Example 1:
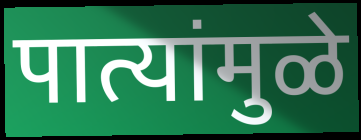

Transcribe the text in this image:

पात्यांमुळे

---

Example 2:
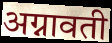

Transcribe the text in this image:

अग्नावती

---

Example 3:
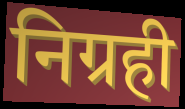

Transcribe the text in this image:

निग्रही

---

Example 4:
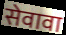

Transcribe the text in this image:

सेवावा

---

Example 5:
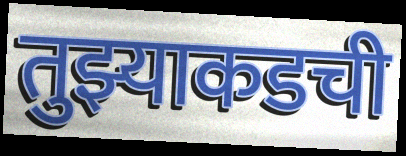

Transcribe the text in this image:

तुझ्याकडची